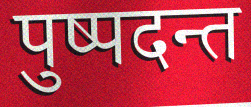
पुष्पदन्त